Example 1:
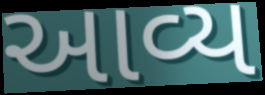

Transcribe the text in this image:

આવ્ય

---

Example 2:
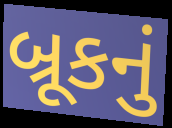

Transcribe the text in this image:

બ્રૂકનું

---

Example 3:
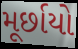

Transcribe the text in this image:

મૂર્છાયો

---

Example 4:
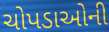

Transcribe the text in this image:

ચોપડાઓની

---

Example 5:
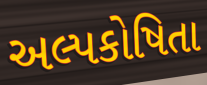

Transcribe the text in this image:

અલ્પકોષિતા